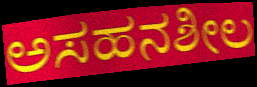
ಅಸಹನಶೀಲ